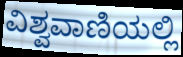
ವಿಶ್ವವಾಣಿಯಲ್ಲಿ